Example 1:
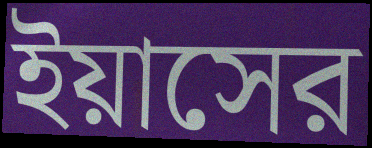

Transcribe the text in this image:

ইয়াসের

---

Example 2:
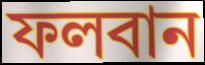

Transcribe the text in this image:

ফলবান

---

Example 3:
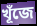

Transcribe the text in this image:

খূঁজে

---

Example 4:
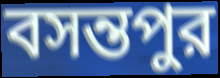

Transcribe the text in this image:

বসন্তপুর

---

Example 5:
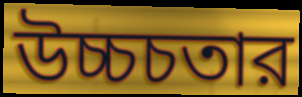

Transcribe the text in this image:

উচ্চচতার